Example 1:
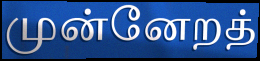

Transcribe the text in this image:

முன்னேறத்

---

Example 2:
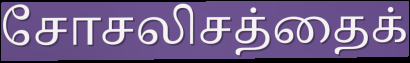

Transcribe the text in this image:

சோசலிசத்தைக்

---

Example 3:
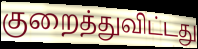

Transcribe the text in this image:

குறைத்துவிட்டது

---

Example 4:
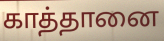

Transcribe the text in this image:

காத்தானை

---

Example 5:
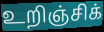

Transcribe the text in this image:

உறிஞ்சிக்